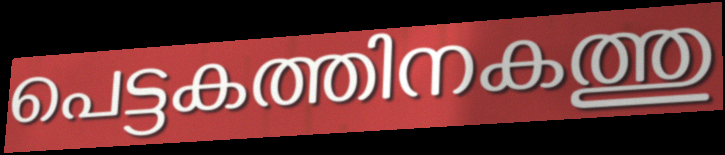
പെട്ടകത്തിനകത്തു